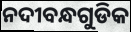
ନଦୀବନ୍ଧଗୁଡିକ